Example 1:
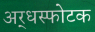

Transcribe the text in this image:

अर्धस्फोटक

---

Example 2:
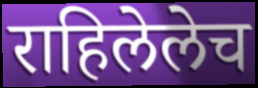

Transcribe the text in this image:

राहिलेलेच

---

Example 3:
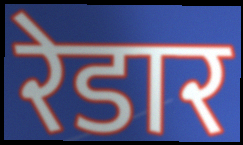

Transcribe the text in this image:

रेडार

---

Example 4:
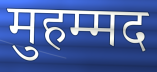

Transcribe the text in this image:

मुहम्मद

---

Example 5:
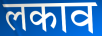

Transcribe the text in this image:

लकाव